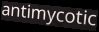
antimycotic